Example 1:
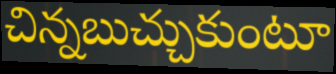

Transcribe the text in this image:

చిన్నబుచ్చుకుంటూ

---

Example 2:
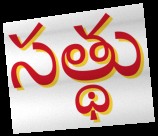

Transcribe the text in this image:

సత్థు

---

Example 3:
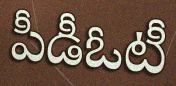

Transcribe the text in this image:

పీడీఓటీ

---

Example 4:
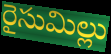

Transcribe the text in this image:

రైసుమిల్లు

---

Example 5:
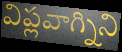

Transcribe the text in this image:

విప్లవాగ్నిని